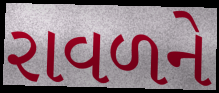
રાવળને